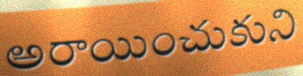
అరాయించుకుని